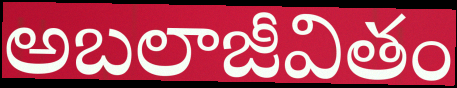
అబలాజీవితం